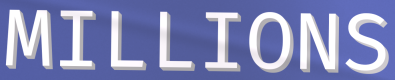
MILLIONS